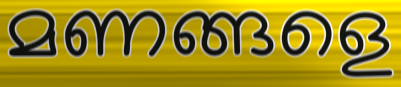
മണങ്ങളെ